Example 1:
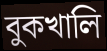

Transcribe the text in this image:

বুকখালি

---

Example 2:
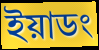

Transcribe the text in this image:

ইয়াডং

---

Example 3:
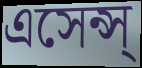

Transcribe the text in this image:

এসেন্স্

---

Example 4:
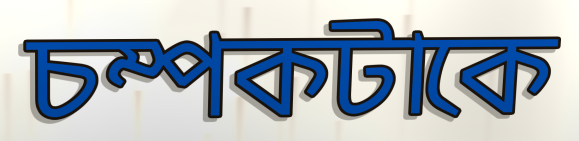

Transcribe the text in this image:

চম্পকটাকে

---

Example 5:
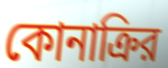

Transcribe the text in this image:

কোনাক্রির